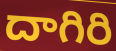
దాగిరి